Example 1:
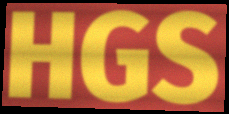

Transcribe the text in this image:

HGS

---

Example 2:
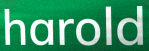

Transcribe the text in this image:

harold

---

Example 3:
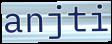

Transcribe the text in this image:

anjti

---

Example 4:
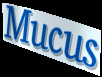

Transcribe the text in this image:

Mucus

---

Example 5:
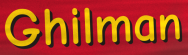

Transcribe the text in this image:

Ghilman